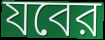
যবের